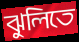
ঝুলিতে